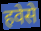
हवेसे